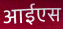
आईएस